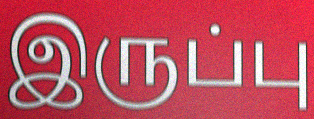
இருப்பு